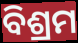
ବିଶ୍ରମ